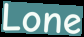
Lone